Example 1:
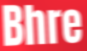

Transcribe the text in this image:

Bhre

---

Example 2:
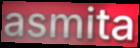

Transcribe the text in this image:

asmita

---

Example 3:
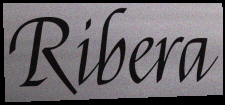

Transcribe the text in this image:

Ribera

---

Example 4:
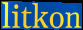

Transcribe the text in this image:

litkon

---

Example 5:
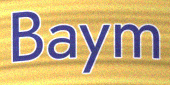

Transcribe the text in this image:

Baym